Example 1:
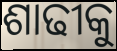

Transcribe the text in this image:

ଶାଢୀକୁ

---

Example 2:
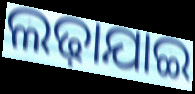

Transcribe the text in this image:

ଲଢ଼ାଯାଇ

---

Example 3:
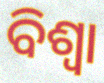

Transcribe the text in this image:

ବିଶ୍ବା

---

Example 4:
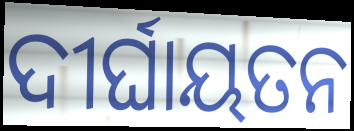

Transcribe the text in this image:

ଦୀର୍ଘାୟତନ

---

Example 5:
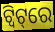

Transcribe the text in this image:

ଟ୍ବିଟ୍‌ରେ